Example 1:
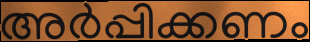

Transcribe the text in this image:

അർപ്പിക്കണം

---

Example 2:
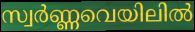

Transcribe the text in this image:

സ്വർണ്ണവെയിലിൽ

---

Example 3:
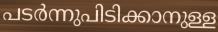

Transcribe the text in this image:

പടർന്നുപിടിക്കാനുള്ള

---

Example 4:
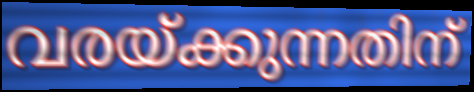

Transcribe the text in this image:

വരയ്ക്കുന്നതിന്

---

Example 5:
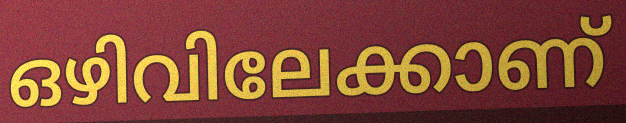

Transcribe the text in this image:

ഒഴിവിലേക്കാണ്